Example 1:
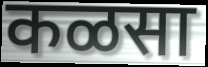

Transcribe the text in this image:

कळसा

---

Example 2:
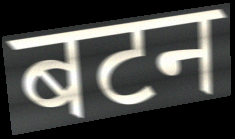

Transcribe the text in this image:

बटन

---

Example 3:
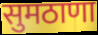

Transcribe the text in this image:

सुमठाणा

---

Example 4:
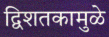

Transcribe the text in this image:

द्विशतकामुळे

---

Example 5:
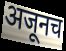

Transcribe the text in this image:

अजूनच